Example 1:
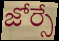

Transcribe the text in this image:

జోర్సే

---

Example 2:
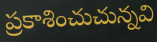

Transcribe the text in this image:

ప్రకాశించుచున్నవి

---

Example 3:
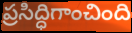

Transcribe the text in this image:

ప్రసిద్ధిగాంచింది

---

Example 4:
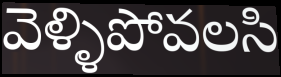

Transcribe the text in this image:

వెళ్ళిపోవలసి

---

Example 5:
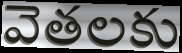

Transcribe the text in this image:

వెతలకు